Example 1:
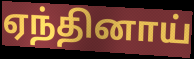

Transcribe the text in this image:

ஏந்தினாய்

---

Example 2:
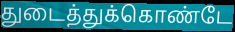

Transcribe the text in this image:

துடைத்துக்கொண்டே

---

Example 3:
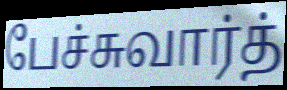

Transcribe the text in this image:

பேச்சுவார்த்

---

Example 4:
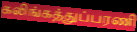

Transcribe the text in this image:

கலிங்கத்துப்பரணி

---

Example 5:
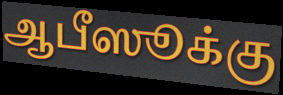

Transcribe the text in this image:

ஆபீஸூக்கு